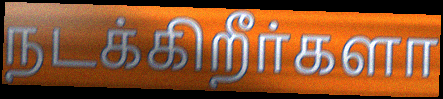
நடக்கிறீர்களா